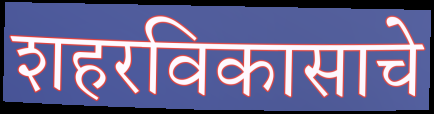
शहरविकासाचे